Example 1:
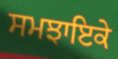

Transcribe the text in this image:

ਸਮਝਾਇਕੇ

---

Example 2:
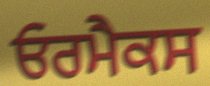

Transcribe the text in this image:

ਓਰਮੈਕਸ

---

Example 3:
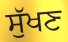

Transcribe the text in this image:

ਸੁੱਖਣ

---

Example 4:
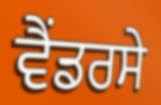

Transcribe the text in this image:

ਵੈਂਡਰਸੇ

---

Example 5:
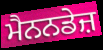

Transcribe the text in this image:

ਮੈਨਨਡੇਜ਼